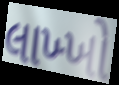
લાખ્ખો